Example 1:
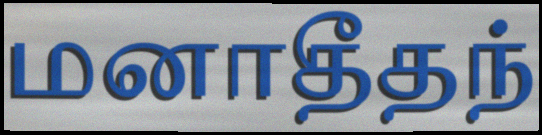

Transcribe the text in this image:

மனாதீதந்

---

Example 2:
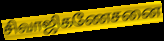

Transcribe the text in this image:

சிவாஜிகணேசனை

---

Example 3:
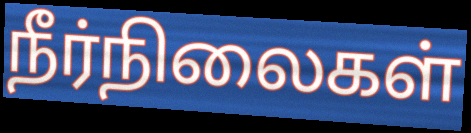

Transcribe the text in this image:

நீர்நிலைகள்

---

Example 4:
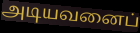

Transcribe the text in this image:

அடியவனைப்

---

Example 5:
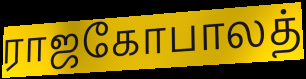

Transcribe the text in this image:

ராஜகோபாலத்